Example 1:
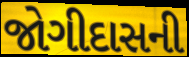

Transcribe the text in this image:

જોગીદાસની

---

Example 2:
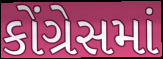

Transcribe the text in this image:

કોંગ્રેસમાં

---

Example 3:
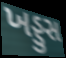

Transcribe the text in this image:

ખડ્ડુસ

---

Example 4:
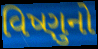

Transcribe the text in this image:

વિષ્ણુનો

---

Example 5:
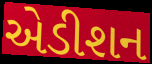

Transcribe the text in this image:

એડીશન